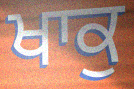
ਖਾਕੁ